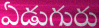
ఏడుగురు